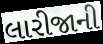
લારીજાની